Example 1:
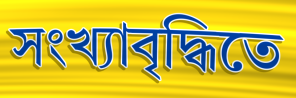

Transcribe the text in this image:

সংখ্যাবৃদ্ধিতে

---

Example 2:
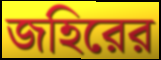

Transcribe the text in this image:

জহিরের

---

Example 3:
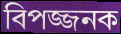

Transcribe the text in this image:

বিপজ্জনক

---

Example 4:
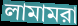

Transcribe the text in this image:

লামামরা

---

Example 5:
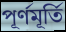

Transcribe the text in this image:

পূর্ণমূর্তি